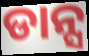
ଡାନ୍ସ